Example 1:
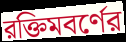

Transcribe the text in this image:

রক্তিমবর্ণের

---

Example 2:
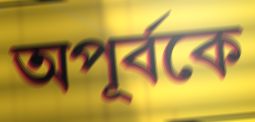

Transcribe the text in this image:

অপূর্বকে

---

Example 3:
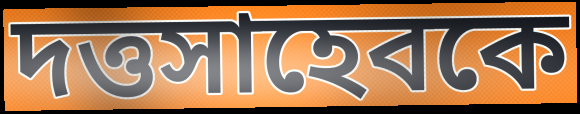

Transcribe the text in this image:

দত্তসাহেবকে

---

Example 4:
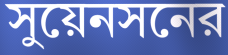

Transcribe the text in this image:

সুয়েনসনের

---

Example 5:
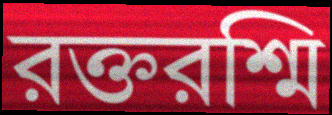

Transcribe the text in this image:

রক্তরশ্মি